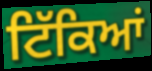
ਟਿੱਕਿਆਂ